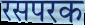
रसपरक